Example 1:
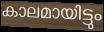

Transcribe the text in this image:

കാലമായിട്ടും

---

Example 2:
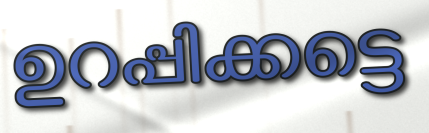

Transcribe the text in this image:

ഉറപ്പിക്കട്ടെ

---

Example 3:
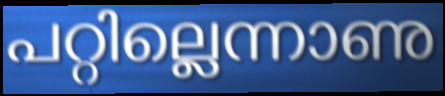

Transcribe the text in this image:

പറ്റില്ലെന്നാണു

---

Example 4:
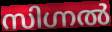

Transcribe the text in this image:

സിഗ്നൽ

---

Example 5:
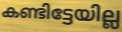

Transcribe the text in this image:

കണ്ടിട്ടേയില്ല